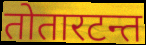
तोतारटन्त